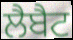
ਲੈਬੈਟ